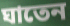
ঘাতেন